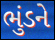
ભુંડને